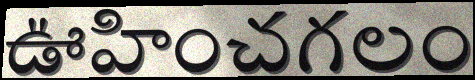
ఊహించగలం